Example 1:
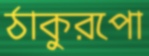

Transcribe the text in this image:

ঠাকুরপো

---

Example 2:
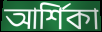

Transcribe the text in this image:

আর্শিকা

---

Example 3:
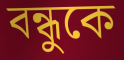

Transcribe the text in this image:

বন্ধুকে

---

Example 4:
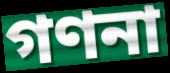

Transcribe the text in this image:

গণনা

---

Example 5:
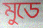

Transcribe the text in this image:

মুডে